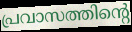
പ്രവാസത്തിന്റെ